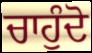
ਚਾਹੁੰਦੋ